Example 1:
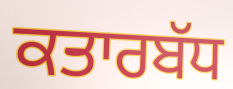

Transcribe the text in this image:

ਕਤਾਰਬੱਧ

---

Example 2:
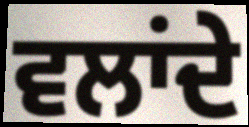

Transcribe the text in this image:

ਵਲਾਂਦੇ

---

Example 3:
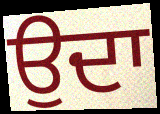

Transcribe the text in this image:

ਉਦਾ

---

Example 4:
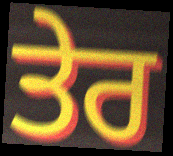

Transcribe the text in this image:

ਤੇਰ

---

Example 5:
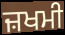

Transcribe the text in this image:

ਜ਼ਖਮੀ